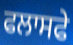
ਫਲਾਸਫੇ